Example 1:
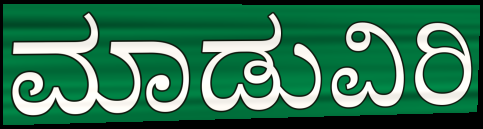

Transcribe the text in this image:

ಮಾಡುವಿರಿ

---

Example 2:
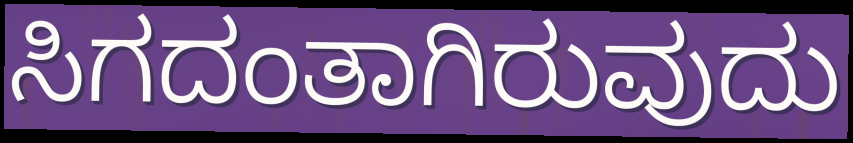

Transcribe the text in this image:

ಸಿಗದಂತಾಗಿರುವುದು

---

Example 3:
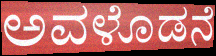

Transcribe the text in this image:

ಅವಳೊಡನೆ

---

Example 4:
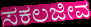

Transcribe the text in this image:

ಸಕಲಜೀವ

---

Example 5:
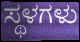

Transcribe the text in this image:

ಸ್ಥಳಗಳು